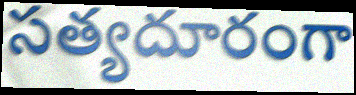
సత్యదూరంగా